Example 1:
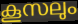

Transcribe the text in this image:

കൂസലും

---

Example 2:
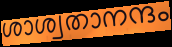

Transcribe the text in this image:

ശാശ്വതാനന്ദം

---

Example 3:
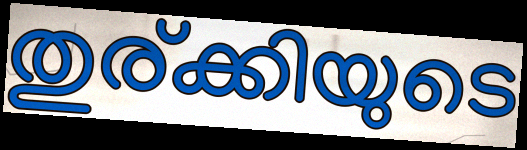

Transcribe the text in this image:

തുര്ക്കിയുടെ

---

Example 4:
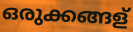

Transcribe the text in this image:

ഒരുക്കങ്ങള്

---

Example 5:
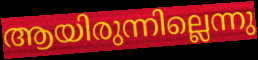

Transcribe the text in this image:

ആയിരുന്നില്ലെന്നു